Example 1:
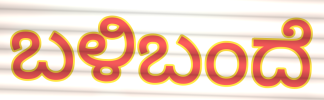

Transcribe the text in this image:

ಬಳಿಬಂದೆ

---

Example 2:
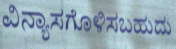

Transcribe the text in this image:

ವಿನ್ಯಾಸಗೊಳಿಸಬಹುದು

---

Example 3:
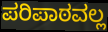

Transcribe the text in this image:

ಪರಿಪಾಠವಲ್ಲ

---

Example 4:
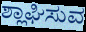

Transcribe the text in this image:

ಶ್ಲಾಘಿಸುವ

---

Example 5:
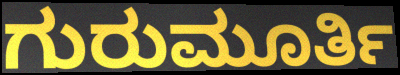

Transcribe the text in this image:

ಗುರುಮೂರ್ತಿ